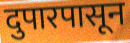
दुपारपासून